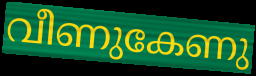
വീണുകേണു